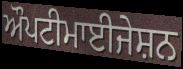
ਔਪਟੀਮਾਈਜੇਸ਼ਨ